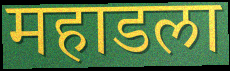
महाडला